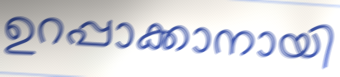
ഉറപ്പാക്കാനായി